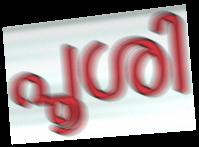
പൂശി